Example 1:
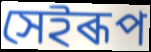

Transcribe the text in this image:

সেইৰূপ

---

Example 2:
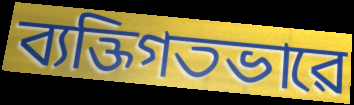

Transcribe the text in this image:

ব্যক্তিগতভাৱে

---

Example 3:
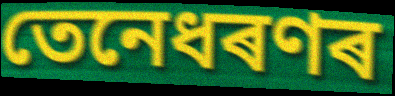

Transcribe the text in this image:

তেনেধৰণৰ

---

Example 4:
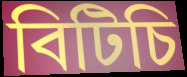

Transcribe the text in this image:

বিটিচি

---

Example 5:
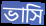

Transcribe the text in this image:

ভাসি